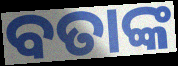
ବତାଙ୍କ